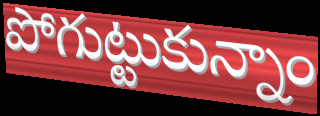
పోగుట్టుకున్నాం